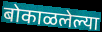
बोकाळलेल्या